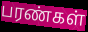
பரண்கள்